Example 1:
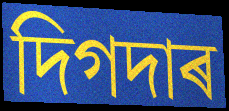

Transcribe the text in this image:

দিগদাৰ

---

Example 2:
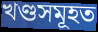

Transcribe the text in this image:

খণ্ডসমূহত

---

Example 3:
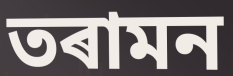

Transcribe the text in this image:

তৰামন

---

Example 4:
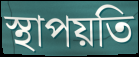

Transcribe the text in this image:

স্থাপয়তি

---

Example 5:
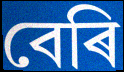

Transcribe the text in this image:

বেৰি